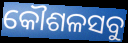
କୌଶଳସବୁ